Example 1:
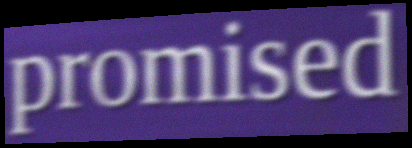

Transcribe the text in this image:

promised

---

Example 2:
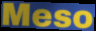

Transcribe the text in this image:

Meso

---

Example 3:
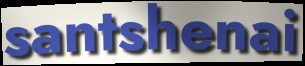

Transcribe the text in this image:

santshenai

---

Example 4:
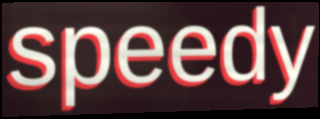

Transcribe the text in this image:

speedy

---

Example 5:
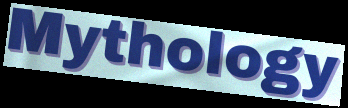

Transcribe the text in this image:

Mythology